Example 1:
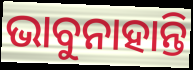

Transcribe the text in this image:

ଭାବୁନାହାନ୍ତି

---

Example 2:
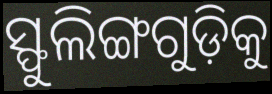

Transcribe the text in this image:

ସ୍ଫୁଲିଙ୍ଗଗୁଡ଼ିକୁ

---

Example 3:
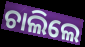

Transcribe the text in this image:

ଚାଲିଲେ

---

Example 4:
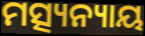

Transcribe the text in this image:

ମତ୍ସ୍ୟନ୍ୟାୟ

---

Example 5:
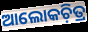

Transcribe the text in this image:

ଆଲୋକଚ଼ିତ୍ର